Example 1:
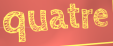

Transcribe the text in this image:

quatre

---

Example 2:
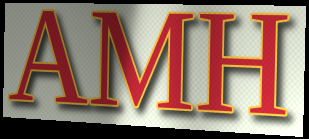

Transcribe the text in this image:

AMH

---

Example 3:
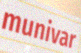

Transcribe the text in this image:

munivar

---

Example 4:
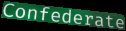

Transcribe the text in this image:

Confederate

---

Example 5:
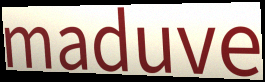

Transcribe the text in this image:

maduve